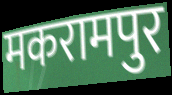
मकरामपुर